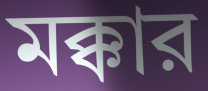
মক্কার